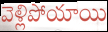
వెళ్లిపోయాయి